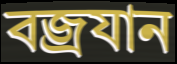
বজ্ৰযান